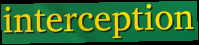
interception